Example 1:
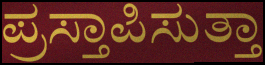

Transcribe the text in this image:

ಪ್ರಸ್ತಾಪಿಸುತ್ತಾ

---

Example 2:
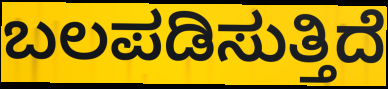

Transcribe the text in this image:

ಬಲಪಡಿಸುತ್ತಿದೆ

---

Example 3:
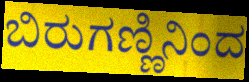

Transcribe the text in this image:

ಬಿರುಗಣ್ಣಿನಿಂದ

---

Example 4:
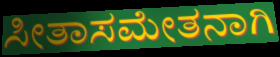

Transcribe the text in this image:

ಸೀತಾಸಮೇತನಾಗಿ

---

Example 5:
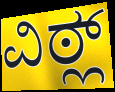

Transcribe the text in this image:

ವಿಠ್ಲ್